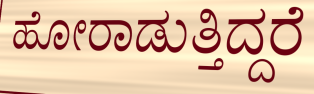
ಹೋರಾಡುತ್ತಿದ್ದರೆ